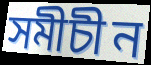
সমীচীন